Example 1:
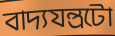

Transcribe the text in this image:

বাদ্যযন্ত্ৰটো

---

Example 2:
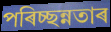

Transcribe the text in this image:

পৰিচ্ছন্নতাৰ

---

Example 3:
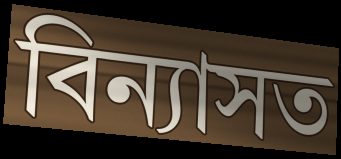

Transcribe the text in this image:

বিন্যাসত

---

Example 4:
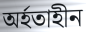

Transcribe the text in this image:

অৰ্হতাহীন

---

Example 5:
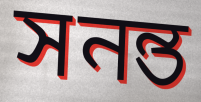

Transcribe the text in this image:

সনন্ত